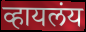
व्हायलंय